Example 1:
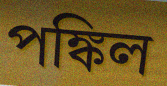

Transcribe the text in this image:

পঙ্কিল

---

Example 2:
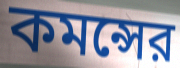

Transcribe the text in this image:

কমন্সের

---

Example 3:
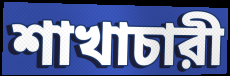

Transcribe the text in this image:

শাখাচারী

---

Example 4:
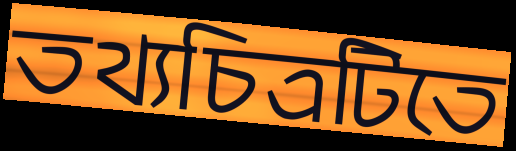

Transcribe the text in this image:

তথ্যচিত্রটিতে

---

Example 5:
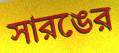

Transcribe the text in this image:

সারঙের